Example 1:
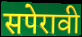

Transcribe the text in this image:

सपेरावी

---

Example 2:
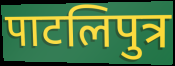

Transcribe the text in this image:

पाटलिपुत्र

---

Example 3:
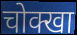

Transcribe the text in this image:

चोक्खा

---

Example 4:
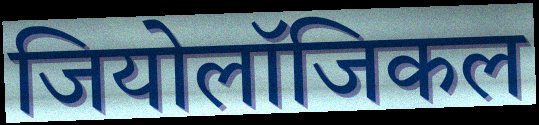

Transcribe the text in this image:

जियोलॉजिकल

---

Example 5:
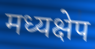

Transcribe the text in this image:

मध्यक्षेप